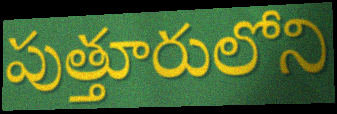
పుత్తూరులోని